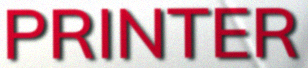
PRINTER